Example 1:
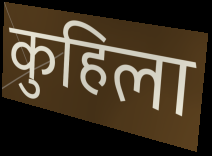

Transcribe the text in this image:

कुहिला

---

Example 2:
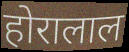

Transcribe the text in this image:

होरालाल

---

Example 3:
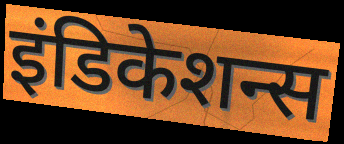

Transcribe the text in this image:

इंडिकेशन्स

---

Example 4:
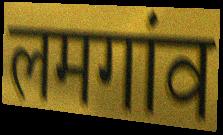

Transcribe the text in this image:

लमगांव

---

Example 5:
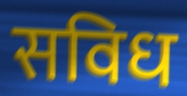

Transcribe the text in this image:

सविध